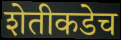
शेतीकडेच